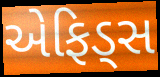
એફિડ્સ